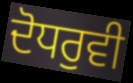
ਦੋਧਰੁਵੀ